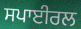
ਸਪਾਈਰਲ